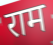
राम